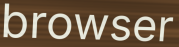
browser